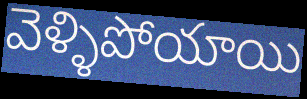
వెళ్ళిపోయాయి